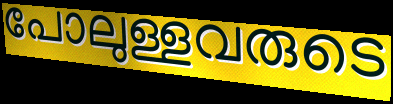
പോലുള്ളവരുടെ